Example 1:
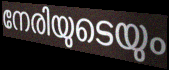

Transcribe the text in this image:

നേരിയുടെയും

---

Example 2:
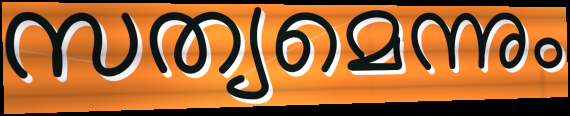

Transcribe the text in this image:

സത്യമെന്നും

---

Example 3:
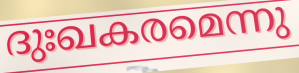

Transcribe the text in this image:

ദുഃഖകരമെന്നു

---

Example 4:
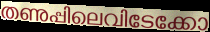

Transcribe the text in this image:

തണുപ്പിലെവിടേക്കോ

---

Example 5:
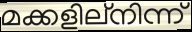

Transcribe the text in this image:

മക്കളില്നിന്ന്